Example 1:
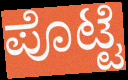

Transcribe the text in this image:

ಪೊಟ್ಟೆ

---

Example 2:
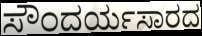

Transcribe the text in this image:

ಸೌಂದರ್ಯಸಾರದ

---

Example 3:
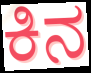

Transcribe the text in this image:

ಕಿನ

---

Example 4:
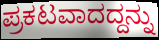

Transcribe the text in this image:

ಪ್ರಕಟವಾದದ್ದನ್ನು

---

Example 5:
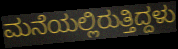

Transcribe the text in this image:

ಮನೆಯಲ್ಲಿರುತ್ತಿದ್ದಳು